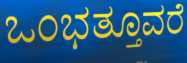
ಒಂಭತ್ತೂವರೆ